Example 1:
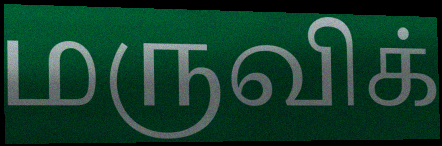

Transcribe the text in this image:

மருவிக்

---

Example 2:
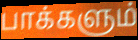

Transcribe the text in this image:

பாக்களும்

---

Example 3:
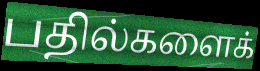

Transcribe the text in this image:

பதில்களைக்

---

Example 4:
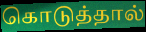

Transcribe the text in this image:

கொடுத்தால்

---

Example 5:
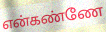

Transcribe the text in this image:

என்கண்ணே